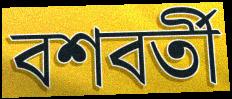
বশবর্তী